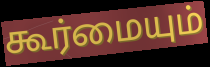
கூர்மையும்